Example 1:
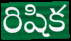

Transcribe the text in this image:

రిషిక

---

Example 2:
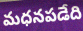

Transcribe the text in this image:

మధనపడేది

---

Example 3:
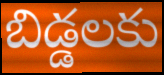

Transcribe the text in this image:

బిడ్డలకు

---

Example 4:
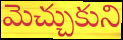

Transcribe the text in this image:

మెచ్చుకుని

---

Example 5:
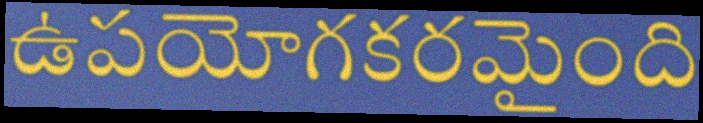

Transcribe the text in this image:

ఉపయోగకరమైంది